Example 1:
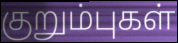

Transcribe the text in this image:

குறும்புகள்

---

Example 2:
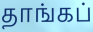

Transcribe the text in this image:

தாங்கப்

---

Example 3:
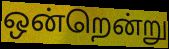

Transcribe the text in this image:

ஒன்றென்று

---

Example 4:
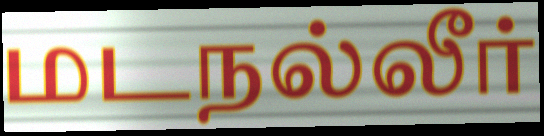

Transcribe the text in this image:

மடநல்லீர்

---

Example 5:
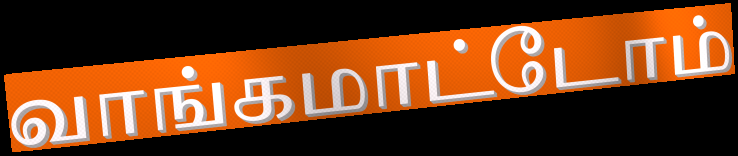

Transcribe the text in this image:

வாங்கமாட்டோம்